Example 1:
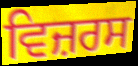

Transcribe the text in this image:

ਵਿਜ਼ਰਸ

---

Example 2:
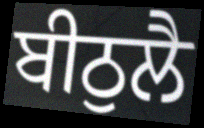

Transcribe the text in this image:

ਬੀਠੁਲੈ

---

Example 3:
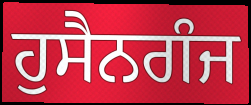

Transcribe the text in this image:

ਹੁਸੈਨਗੰਜ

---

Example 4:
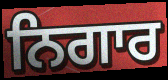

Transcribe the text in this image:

ਨਿਗਾਰ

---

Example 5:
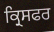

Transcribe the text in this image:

ਕ੍ਰਿਸਫਰ